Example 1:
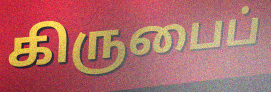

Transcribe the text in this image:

கிருபைப்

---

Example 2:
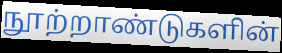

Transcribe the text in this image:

நூற்றாண்டுகளின்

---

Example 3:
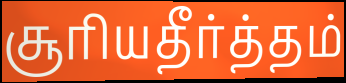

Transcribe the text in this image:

சூரியதீர்த்தம்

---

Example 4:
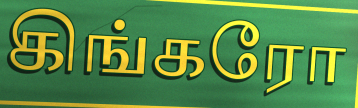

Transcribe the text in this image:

கிங்கரோ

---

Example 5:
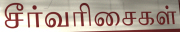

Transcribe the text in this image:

சீர்வரிசைகள்